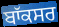
ਬਾੱਕਸਰ